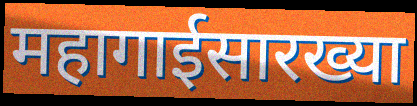
महागाईसारख्या